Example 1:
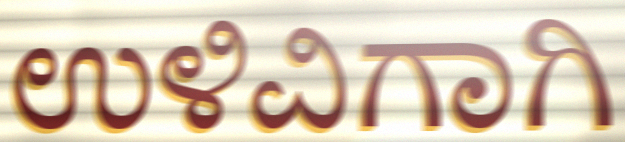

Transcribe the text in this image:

ಉಳಿವಿಗಾಗಿ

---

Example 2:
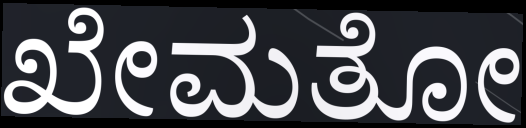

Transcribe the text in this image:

ಖೇಮತೋ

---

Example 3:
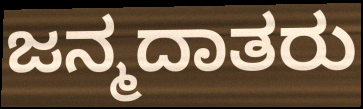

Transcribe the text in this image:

ಜನ್ಮದಾತರು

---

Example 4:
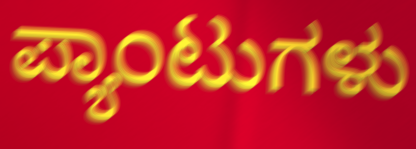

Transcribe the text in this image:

ಪ್ಯಾಂಟುಗಳು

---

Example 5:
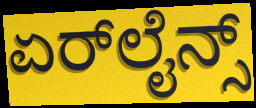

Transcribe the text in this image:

ಏರ್‌ಲೈನ್ಸ್